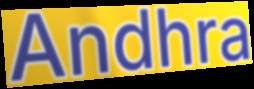
Andhra